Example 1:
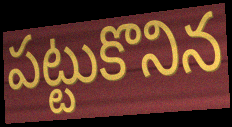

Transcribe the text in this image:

పట్టుకొనిన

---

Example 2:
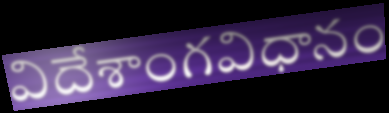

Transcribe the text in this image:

విదేశాంగవిధానం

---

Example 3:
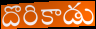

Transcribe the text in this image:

దొరికాడు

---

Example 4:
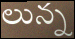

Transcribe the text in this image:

లున్న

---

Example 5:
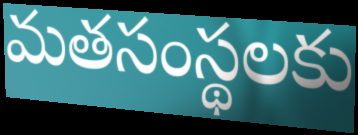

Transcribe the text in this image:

మతసంస్థలకు